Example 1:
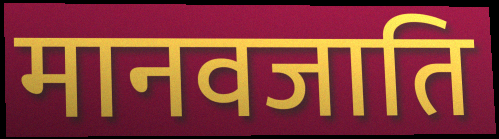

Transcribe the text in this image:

मानवजाति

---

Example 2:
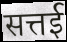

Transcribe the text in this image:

सत्तई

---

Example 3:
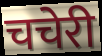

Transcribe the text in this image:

चचेरी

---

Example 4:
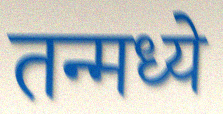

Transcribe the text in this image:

तन्मध्ये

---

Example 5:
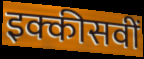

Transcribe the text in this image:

इक्‍कीसवीं